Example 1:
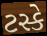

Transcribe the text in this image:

ટસ્કે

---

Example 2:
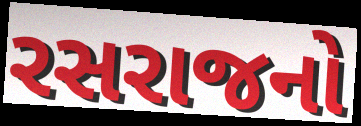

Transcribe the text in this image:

રસરાજનો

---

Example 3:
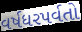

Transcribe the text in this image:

વર્ષધરપર્વતો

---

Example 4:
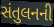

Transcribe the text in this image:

સંતુલનની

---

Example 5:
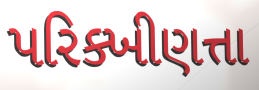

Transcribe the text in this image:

પરિક્ખીણત્તા